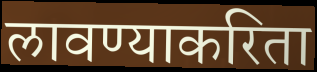
लावण्याकरिता